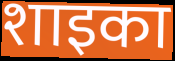
शाइका